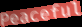
Peaceful